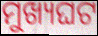
ମୁଖ୍ୟଘଟ